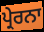
ਪ੍ਰੇਰਨਾ